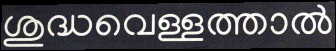
ശുദ്ധവെള്ളത്താൽ